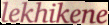
lekhikene